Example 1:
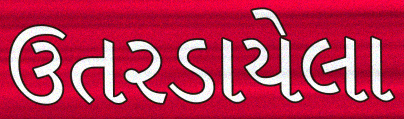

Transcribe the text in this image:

ઉતરડાયેલા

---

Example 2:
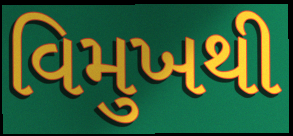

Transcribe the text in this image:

વિમુખથી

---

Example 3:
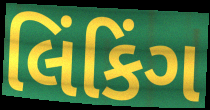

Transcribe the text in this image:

લિંકિંગ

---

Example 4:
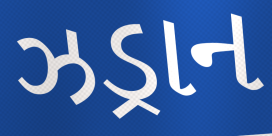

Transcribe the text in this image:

ઝડ્રાન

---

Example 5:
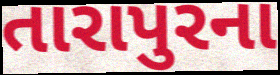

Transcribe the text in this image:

તારાપુરના